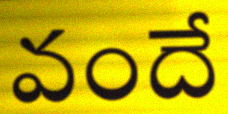
వందే